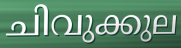
ചിവുക്കുല